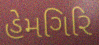
હેમગિરિ